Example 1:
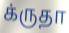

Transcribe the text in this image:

க்ருதா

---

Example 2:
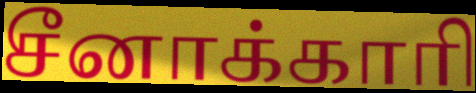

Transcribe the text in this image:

சீனாக்காரி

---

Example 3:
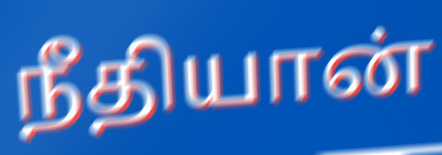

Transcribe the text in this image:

நீதியான்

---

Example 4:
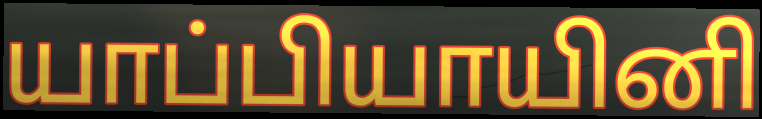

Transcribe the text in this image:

யாப்பியாயினி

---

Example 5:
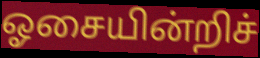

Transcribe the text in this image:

ஓசையின்றிச்